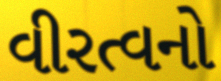
વીરત્વનો